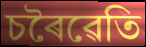
চৰৈৱেতি